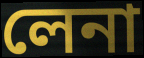
লেনা